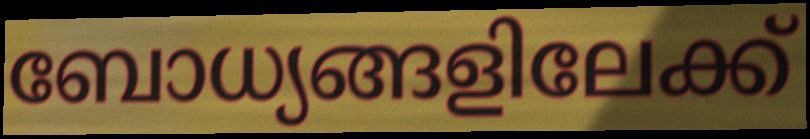
ബോധ്യങ്ങളിലേക്ക്